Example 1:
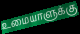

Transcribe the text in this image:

உமையாளுக்கு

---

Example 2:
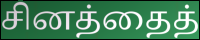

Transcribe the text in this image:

சினத்தைத்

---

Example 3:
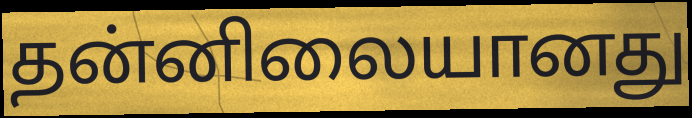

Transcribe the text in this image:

தன்னிலையானது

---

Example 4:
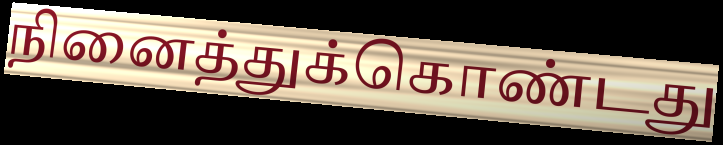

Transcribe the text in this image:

நினைத்துக்கொண்டது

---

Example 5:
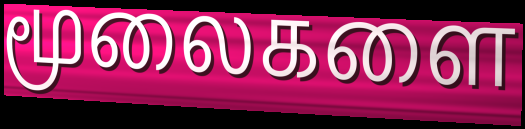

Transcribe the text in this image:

மூலைகளை